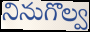
నినుగొల్వ